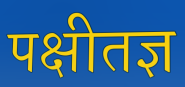
पक्षीतज्ञ